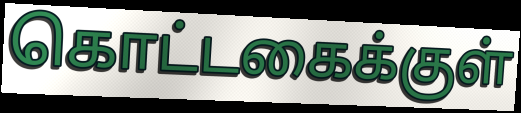
கொட்டகைக்குள்